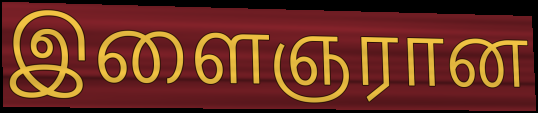
இளைஞரான